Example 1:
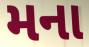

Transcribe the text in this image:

મના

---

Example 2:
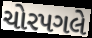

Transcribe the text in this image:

ચોરપગલે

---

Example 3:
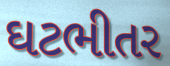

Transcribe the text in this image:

ઘટભીતર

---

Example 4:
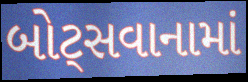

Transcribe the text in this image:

બોટ્સવાનામાં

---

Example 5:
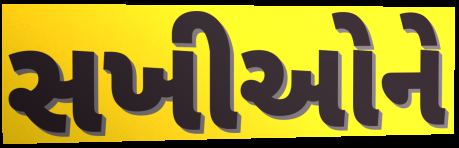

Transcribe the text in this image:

સખીઓને